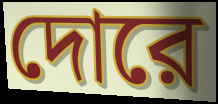
দোরে